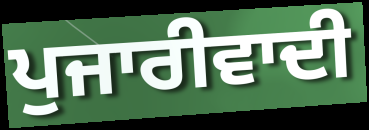
ਪੁਜਾਰੀਵਾਦੀ